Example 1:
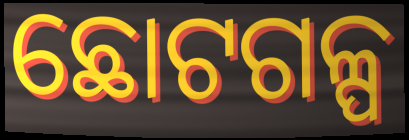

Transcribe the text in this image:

ଛୋଟଗଳ୍ପ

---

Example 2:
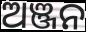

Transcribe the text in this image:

ଅଞ୍ଜନ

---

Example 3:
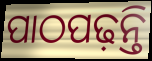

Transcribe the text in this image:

ପାଠପଢ଼ନ୍ତି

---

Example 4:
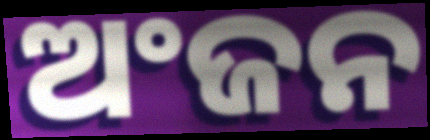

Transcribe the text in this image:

ଅଂଜନ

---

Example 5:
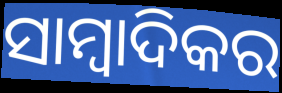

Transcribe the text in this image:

ସାମ୍ବାଦିକର